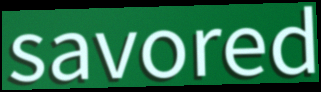
savored